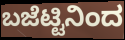
ಬಜೆಟ್ಟಿನಿಂದ